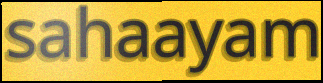
sahaayam